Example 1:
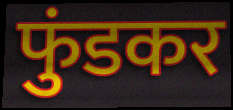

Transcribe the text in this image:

फुंडकर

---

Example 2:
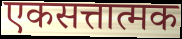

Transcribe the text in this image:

एकसत्तात्मक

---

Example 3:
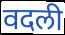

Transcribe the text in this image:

वदली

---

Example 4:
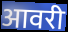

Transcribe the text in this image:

आवरी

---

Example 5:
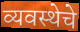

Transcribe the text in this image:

व्यवस्थेचे